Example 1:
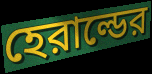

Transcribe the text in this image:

হেরাল্ডের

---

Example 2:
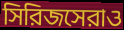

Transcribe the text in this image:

সিরিজসেরাও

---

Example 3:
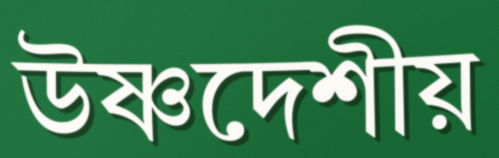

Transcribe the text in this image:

উষ্ণদেশীয়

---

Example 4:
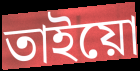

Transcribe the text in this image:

তাইয়ো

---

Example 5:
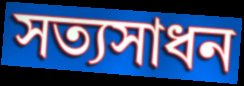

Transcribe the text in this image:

সত্যসাধন